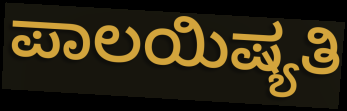
ಪಾಲಯಿಷ್ಯತಿ